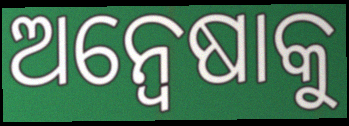
ଅନ୍ୱେଷାକୁ